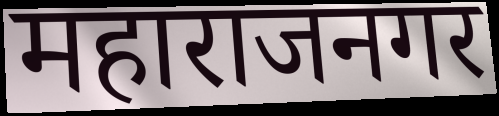
महाराजनगर